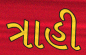
ત્રાહી